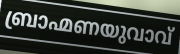
ബ്രാഹ്മണയുവാവ്